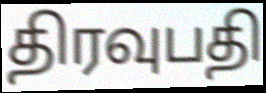
திரவுபதி